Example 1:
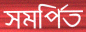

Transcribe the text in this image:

সমৰ্পিত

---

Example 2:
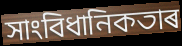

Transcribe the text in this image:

সাংবিধানিকতাৰ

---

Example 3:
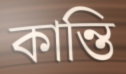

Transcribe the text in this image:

কান্তি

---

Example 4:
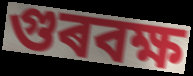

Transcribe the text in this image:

গুৰবক্ষ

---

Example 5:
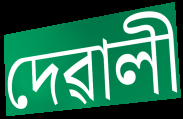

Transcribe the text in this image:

দেৱালী